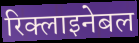
रिक्लाइनेबल